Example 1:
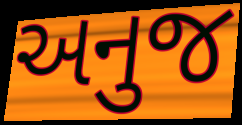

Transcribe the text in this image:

અનુજ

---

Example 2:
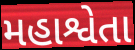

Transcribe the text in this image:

મહાશ્વેતા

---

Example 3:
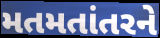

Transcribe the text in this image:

મતમતાંતરને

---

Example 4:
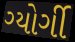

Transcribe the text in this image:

ગ્યોર્ગી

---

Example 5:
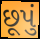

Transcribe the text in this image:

છૂપું